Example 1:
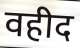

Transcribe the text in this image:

वहीद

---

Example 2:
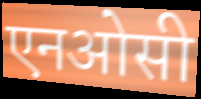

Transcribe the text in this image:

एनओसी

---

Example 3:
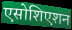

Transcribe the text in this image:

एसोशिएशन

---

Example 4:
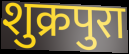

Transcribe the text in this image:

शुक्रपुरा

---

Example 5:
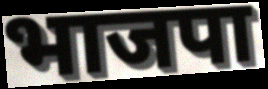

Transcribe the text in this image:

भाजपा